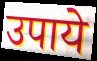
उपाये